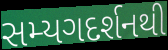
સમ્યગદર્શનથી